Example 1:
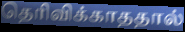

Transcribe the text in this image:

தெரிவிக்காததால்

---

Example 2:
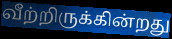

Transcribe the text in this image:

வீற்றிருக்கின்றது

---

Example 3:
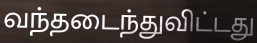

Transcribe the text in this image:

வந்தடைந்துவிட்டது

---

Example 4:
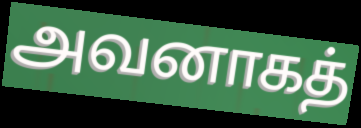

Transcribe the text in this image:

அவனாகத்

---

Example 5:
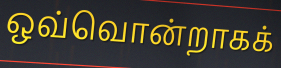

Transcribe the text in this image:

ஒவ்வொன்றாகக்